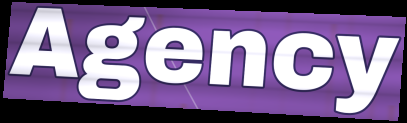
Agency